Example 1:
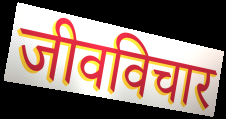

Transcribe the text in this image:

जीवविचार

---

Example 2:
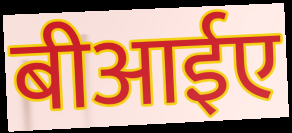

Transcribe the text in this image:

बीआईए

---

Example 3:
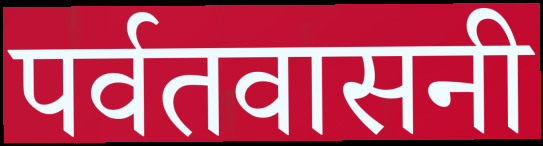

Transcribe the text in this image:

पर्वतवासनी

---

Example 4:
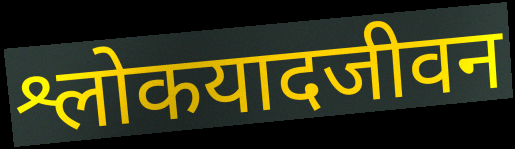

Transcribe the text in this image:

श्लोकयादजीवन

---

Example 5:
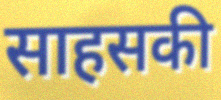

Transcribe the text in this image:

साहसकी